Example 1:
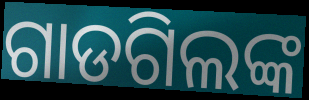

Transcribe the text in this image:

ଗାଡଗିଲଙ୍କ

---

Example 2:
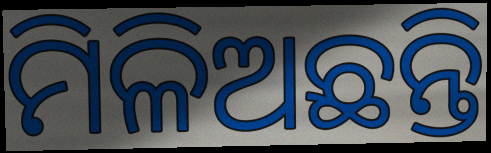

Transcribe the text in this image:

ମିଳିଅଛନ୍ତି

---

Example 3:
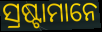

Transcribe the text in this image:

ସ୍ରଷ୍ଟାମାନେ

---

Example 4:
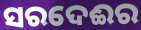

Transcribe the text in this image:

ସରଦେଈର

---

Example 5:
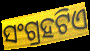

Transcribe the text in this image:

ସଂଗ୍ରହଟିଏ